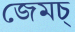
জেমচ্